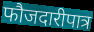
फौजदारीपात्र